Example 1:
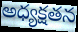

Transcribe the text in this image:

అధ్యక్షతన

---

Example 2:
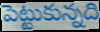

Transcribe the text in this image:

పెట్టుకున్నది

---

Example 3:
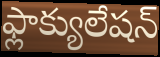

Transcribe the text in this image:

ఫ్లాక్యులేషన్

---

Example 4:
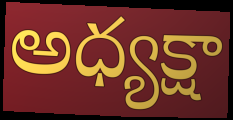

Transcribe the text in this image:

అధ్యక్షా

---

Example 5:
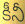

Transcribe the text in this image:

కీనీ